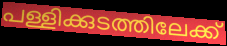
പള്ളിക്കുടത്തിലേക്ക്